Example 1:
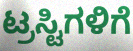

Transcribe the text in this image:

ಟ್ರಸ್ಟಿಗಳಿಗೆ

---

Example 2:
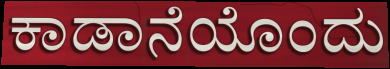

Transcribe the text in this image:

ಕಾಡಾನೆಯೊಂದು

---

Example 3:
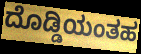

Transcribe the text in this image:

ದೊಡ್ಡಿಯಂತಹ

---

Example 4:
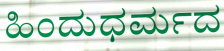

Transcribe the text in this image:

ಹಿಂದುಧರ್ಮದ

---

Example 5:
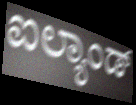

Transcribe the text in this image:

ಐಲ್ಯಾಂಡ್